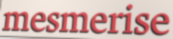
mesmerise